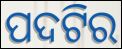
ପଦଟିର